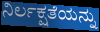
ನಿರ್ಲಕ್ಷತೆಯನ್ನು